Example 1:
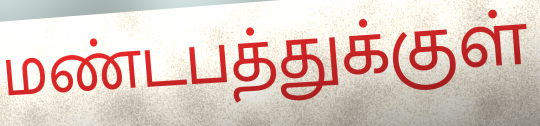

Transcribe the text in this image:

மண்டபத்துக்குள்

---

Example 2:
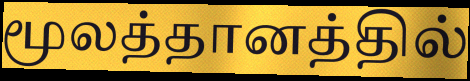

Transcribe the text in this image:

மூலத்தானத்தில்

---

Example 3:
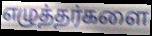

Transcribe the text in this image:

எழுத்தர்களை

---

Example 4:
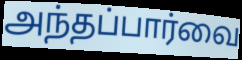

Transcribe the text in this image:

அந்தப்பார்வை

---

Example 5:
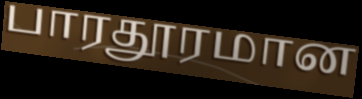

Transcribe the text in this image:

பாரதூரமான